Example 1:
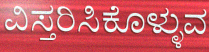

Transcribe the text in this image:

ವಿಸ್ತರಿಸಿಕೊಳ್ಳುವ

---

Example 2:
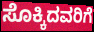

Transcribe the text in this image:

ಸೊಕ್ಕಿದವರಿಗೆ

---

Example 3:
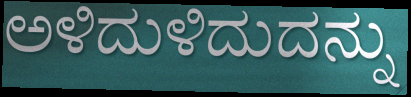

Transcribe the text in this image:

ಅಳಿದುಳಿದುದನ್ನು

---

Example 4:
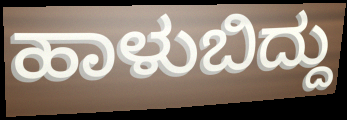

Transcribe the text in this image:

ಹಾಳುಬಿದ್ದು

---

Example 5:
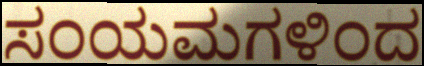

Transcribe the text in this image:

ಸಂಯಮಗಳಿಂದ